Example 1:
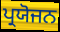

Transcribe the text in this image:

ਪ੍ਰਯੋਜਨ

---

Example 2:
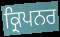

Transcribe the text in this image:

ਕ੍ਰਿਪਨਰ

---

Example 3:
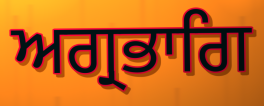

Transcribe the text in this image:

ਅਗ੍ਰਭਾਗਿ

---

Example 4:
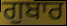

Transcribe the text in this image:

ਗੁਬਾਰ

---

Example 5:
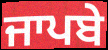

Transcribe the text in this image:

ਜਾਪਬੇ